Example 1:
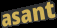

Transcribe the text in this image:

asant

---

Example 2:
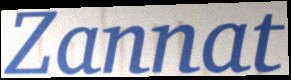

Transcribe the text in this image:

Zannat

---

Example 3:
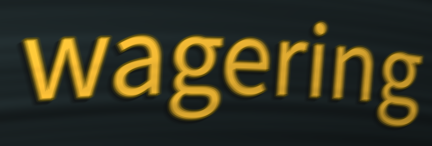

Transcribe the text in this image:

wagering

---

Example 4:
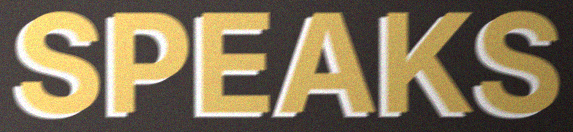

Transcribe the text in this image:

SPEAKS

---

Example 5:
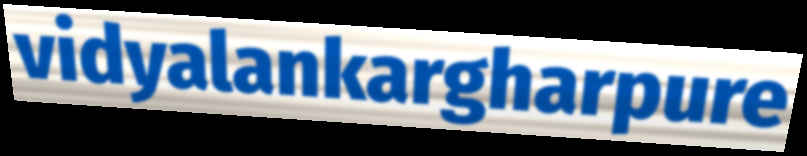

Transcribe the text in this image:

vidyalankargharpure